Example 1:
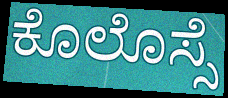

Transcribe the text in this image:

ಕೊಲೊಸ್ಸೆ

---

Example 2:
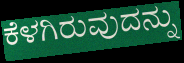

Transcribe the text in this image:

ಕೆಳಗಿರುವುದನ್ನು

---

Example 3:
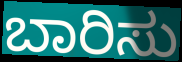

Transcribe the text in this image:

ಬಾರಿಸು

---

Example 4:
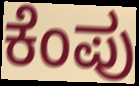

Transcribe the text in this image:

ಕೆಂಪು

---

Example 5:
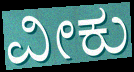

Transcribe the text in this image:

ವೀಕು